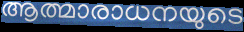
ആത്മാരാധനയുടെ